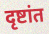
दृष्टांत